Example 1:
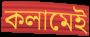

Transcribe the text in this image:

কলামেই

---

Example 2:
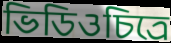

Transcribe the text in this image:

ভিডিওচিত্রে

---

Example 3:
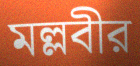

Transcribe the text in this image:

মল্লবীর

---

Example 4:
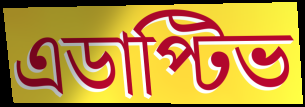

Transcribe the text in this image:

এডাপ্টিভ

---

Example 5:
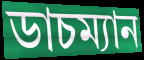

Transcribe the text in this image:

ডাচম্যান